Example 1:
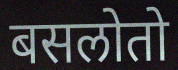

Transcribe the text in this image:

बसलोतो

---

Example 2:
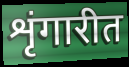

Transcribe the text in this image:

शृंगारीत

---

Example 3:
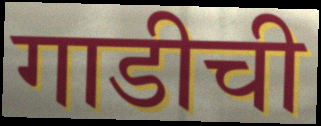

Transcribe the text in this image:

गाडीची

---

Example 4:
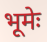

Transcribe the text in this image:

भूमेः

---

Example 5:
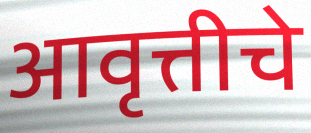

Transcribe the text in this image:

आवृत्तीचे